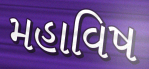
મહાવિષ